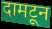
दामटून